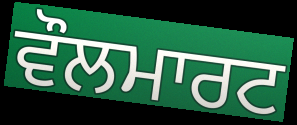
ਵੌਲਮਾਰਟ